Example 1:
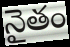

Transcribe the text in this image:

నైతం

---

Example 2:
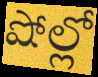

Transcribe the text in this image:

షోల్లో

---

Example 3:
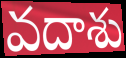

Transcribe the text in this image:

వదాశు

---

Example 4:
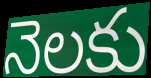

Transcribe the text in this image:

నెలకు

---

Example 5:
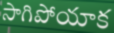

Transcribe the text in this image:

సాగిపోయాక